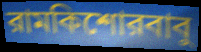
রামকিশোরবাবু